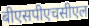
बीएसपीएचसीएल